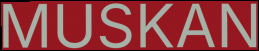
MUSKAN